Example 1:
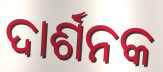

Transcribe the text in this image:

ଦାର୍ଶନକ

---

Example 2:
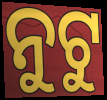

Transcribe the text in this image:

ନୁଟୁ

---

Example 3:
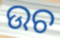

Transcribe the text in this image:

ଉଚ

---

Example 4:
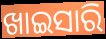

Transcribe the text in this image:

ଖାଇସାରି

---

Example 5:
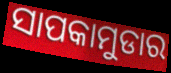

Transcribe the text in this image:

ସାପକାମୁଡାର